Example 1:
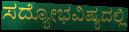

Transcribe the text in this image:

ಸದ್ಯೋಭವಿಷ್ಯದಲ್ಲಿ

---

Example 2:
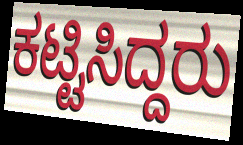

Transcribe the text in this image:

ಕಟ್ಟಿಸಿದ್ದರು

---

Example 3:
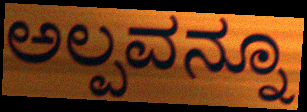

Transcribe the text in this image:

ಅಲ್ಪವನ್ನೂ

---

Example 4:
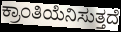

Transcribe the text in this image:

ಕ್ರಾಂತಿಯೆನಿಸುತ್ತದೆ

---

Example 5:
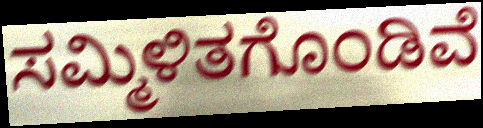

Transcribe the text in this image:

ಸಮ್ಮಿಳಿತಗೊಂಡಿವೆ